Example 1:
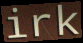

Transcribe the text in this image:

irk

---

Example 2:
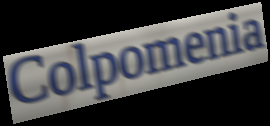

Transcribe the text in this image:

Colpomenia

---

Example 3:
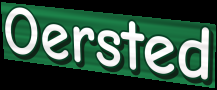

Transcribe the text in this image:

Oersted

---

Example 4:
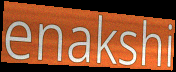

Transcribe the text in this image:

enakshi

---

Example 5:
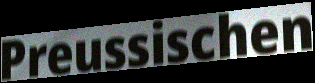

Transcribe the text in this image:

Preussischen